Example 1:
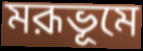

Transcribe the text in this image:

মরূভূমে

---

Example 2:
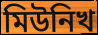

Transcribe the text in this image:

মিউনিখ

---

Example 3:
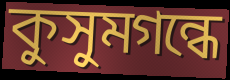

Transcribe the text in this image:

কুসুমগন্ধে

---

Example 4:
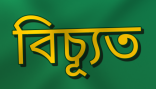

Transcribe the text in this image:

বিচ্যূত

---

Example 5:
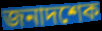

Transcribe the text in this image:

জনাদশেক